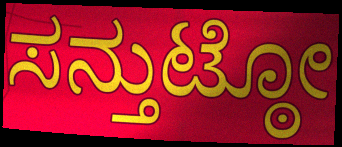
ಸನ್ತುಟ್ಠೋ